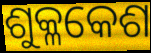
ଶୁକ୍ଳକେଶ